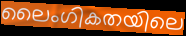
ലൈംഗികതയിലെ